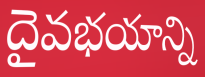
దైవభయాన్ని